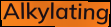
Alkylating